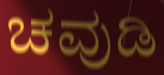
ಚವುಡಿ